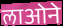
लाओने